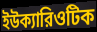
ইউক্যারিওটিক